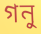
গনু